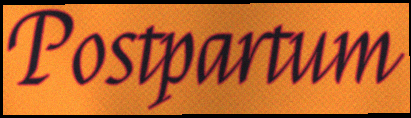
Postpartum